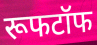
रूफटॉफ